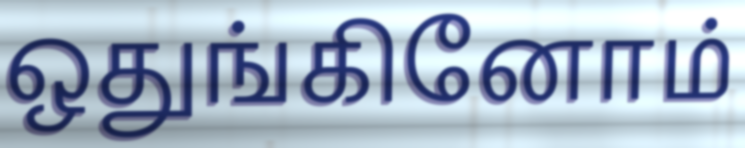
ஒதுங்கினோம்